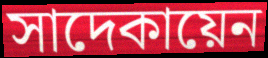
সাদেকায়েন